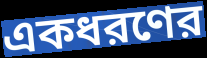
একধরণের